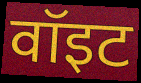
वॉइट